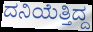
ದನಿಯೆತ್ತಿದ್ದ